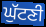
ਘੁੱਟਣੀ